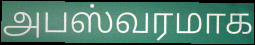
அபஸ்வரமாக